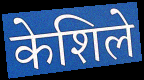
केशिले